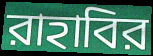
রাহাবির